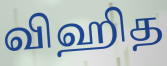
விஹித